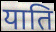
याति